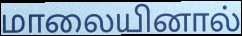
மாலையினால்